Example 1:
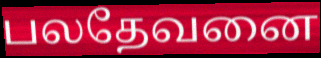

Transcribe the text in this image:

பலதேவனை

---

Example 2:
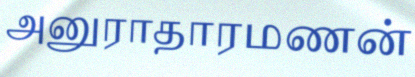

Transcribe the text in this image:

அனுராதாரமணன்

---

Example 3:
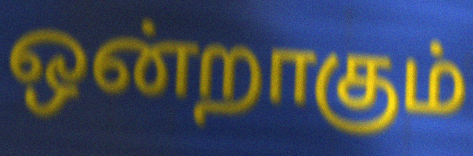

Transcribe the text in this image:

ஒன்றாகும்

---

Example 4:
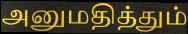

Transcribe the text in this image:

அனுமதித்தும்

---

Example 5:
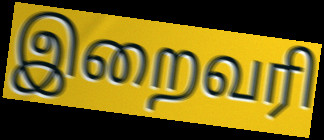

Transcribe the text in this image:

இறைவரி